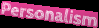
Personalism